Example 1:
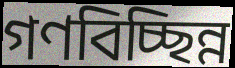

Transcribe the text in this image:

গণবিচ্ছিন্ন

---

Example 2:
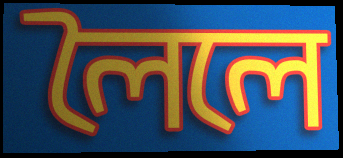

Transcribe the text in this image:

লৈলে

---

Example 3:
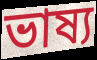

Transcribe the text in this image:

ভাষ্য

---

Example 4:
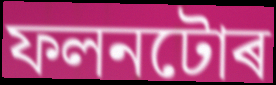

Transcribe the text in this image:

ফলনটোৰ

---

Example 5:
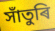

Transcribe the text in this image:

সাঁতুৰি